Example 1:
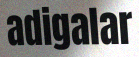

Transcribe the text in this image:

adigalar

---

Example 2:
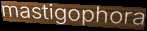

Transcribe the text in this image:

mastigophora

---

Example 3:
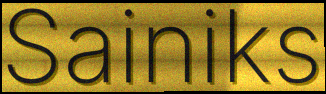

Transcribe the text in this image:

Sainiks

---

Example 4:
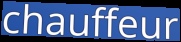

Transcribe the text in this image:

chauffeur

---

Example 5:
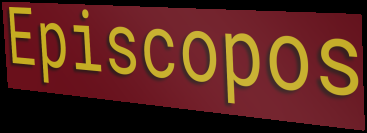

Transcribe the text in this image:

Episcopos